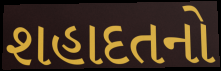
શહાદતનો